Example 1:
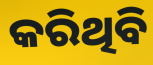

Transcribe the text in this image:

କରିଥିବି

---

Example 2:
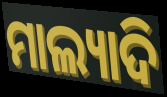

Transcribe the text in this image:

ମାଲ୍ୟାଦି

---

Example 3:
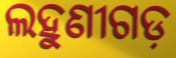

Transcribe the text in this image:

ଲହୁଣୀଗଡ଼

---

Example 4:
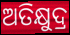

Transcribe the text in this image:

ଅତିକ୍ଷୁଦ୍ର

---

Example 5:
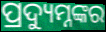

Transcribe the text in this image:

ପ୍ରଦ୍ୟୁମ୍ନଙ୍କର